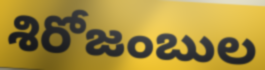
శిరోజంబుల